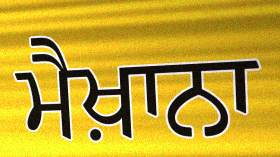
ਮੈਖ਼ਾਨਾ